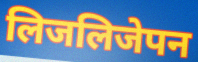
लिजलिजेपन